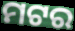
ମଟର